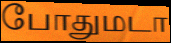
போதுமடா